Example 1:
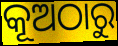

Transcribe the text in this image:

କୂଅଠାରୁ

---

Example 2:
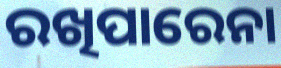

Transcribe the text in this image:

ରଖିପାରେନା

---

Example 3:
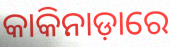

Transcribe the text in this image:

କାକିନାଡ଼ାରେ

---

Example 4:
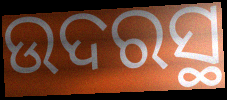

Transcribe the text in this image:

ଉଦରସ୍ଥ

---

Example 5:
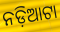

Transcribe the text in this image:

ନଡ଼ିଆଟା